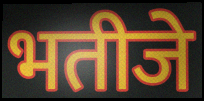
भतीजे